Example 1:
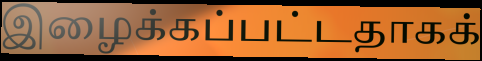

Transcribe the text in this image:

இழைக்கப்பட்டதாகக்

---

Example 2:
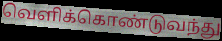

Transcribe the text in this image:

வெளிக்கொண்டுவந்து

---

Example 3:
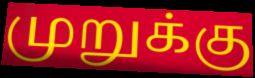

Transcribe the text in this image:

முறுக்கு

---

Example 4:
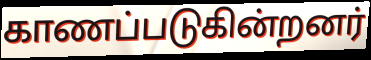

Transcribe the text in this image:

காணப்படுகின்றனர்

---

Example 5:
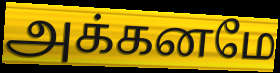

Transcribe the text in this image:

அக்கனமே